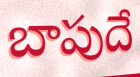
బాపుదే